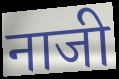
नाजी